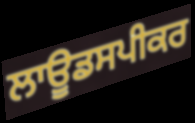
ਲਾਊਡਸਪੀਕਰ